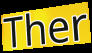
Ther